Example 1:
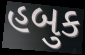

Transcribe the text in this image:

હબુક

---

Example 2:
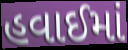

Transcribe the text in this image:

હવાઈમાં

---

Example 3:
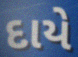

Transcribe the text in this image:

દાયે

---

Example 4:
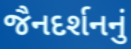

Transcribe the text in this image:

જૈનદર્શનનું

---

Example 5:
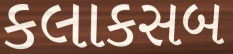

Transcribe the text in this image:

કલાકસબ